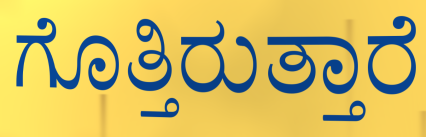
ಗೊತ್ತಿರುತ್ತಾರೆ